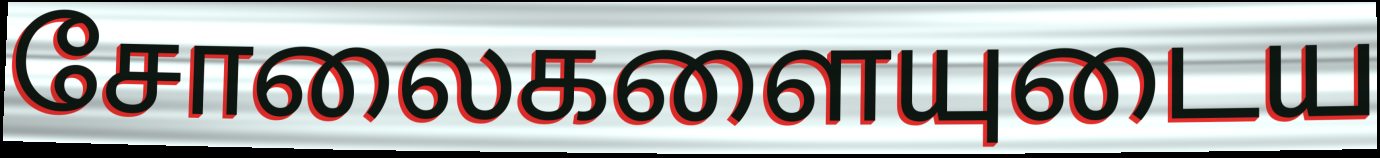
சோலைகளையுடைய